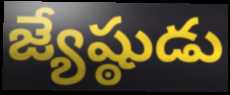
జ్యేష్ఠుడు